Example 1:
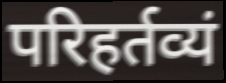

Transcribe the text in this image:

परिहर्तव्यं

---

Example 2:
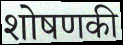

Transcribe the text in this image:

शोषणकी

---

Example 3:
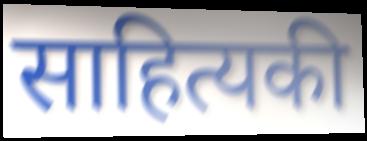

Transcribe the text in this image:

साहित्यकी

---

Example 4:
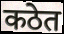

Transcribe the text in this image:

कठेत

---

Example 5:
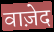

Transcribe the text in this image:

वाज़ेद